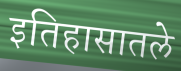
इतिहासातले